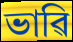
ভাৱি